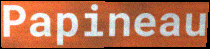
Papineau